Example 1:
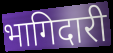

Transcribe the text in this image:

भागिदारी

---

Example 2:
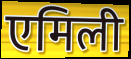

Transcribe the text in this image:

एमिली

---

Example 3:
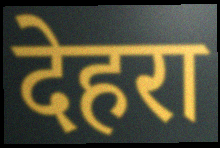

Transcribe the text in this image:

देहरा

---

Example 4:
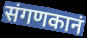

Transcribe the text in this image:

संगणकानं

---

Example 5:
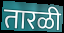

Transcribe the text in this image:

तारळी